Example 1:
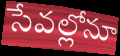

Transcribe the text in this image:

సేవల్లోనూ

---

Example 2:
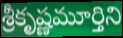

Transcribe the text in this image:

శ్రీకృష్ణమూర్తిని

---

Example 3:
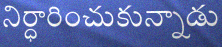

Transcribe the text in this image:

నిర్ధారించుకున్నాడు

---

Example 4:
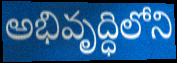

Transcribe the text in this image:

అభివృద్ధిలోని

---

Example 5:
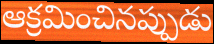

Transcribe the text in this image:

ఆక్రమించినప్పుడు